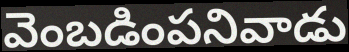
వెంబడింపనివాడు